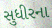
સુધીરના